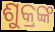
ଶୁକ୍ରଙ୍କ